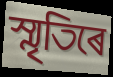
স্মৃতিৰে